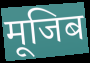
मूजिब